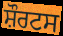
ਸ਼ੌਰਟਸ